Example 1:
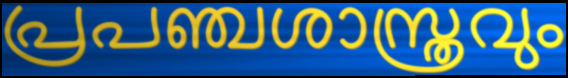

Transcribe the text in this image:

പ്രപഞ്ചശാസ്ത്രവും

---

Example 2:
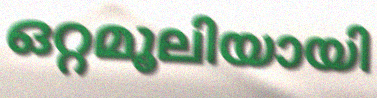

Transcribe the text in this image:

ഒറ്റമൂലിയായി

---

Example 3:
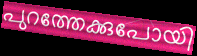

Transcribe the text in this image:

പുറത്തേക്കുപോയി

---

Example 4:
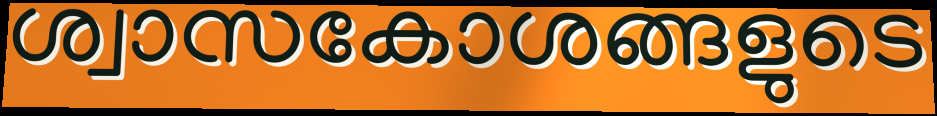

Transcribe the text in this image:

ശ്വാസകോശങ്ങളുടെ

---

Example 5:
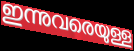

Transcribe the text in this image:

ഇന്നുവരെയുള്ള